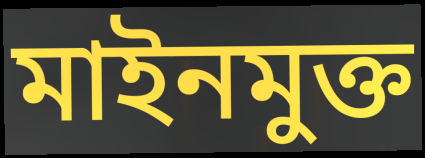
মাইনমুক্ত